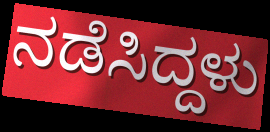
ನಡೆಸಿದ್ದಳು